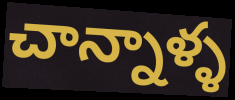
చాన్నాళ్ళ